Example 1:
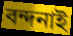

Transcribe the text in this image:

বন্দনাই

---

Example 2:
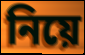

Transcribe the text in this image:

নিয়ে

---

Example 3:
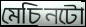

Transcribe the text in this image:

মেচিনটো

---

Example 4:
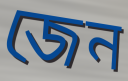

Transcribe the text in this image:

জেন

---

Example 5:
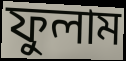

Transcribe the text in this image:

ফুলাম